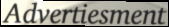
Advertiesment